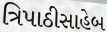
ત્રિપાઠીસાહેબ